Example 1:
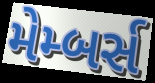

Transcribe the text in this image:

મેમ્બર્સ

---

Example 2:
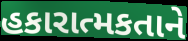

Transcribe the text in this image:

હકારાત્મકતાને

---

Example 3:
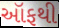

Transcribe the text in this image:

ઑફથી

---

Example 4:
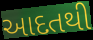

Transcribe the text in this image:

આદતથી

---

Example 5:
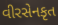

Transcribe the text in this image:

વીરસેનકૃત